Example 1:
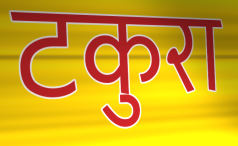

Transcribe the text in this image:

टकुरा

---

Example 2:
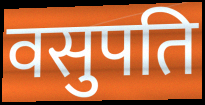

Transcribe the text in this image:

वसुपति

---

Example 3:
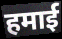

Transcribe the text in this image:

हमाई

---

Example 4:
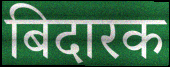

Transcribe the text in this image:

बिदारक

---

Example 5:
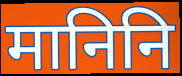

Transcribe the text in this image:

मानिनि